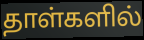
தாள்களில்